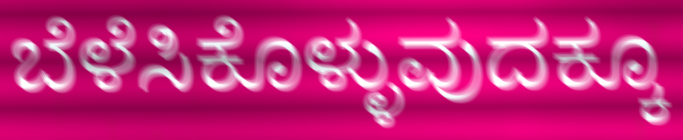
ಬೆಳೆಸಿಕೊಳ್ಳುವುದಕ್ಕೂ